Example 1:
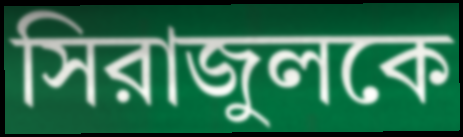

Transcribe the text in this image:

সিরাজুলকে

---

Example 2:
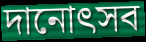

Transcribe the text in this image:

দানোৎসব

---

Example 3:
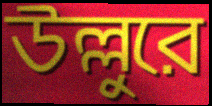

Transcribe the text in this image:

উল্লুরে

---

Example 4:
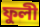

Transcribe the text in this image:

ফুলী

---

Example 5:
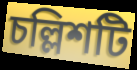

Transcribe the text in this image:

চল্লিশটি